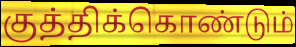
குத்திக்கொண்டும்